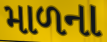
માળના